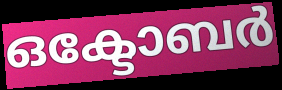
ഒക്ടോബർ